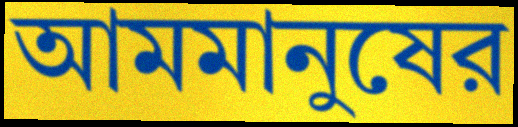
আমমানুষের